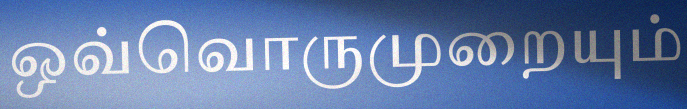
ஒவ்வொருமுறையும்